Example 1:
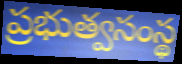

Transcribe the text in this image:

ప్రభుత్వసంస్థ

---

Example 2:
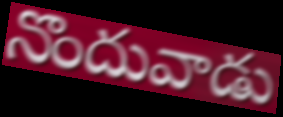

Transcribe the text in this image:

నొందువాడు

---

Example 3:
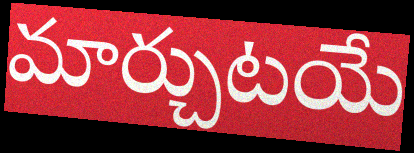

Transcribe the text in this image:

మార్చుటయే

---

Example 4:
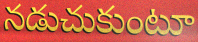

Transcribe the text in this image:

నడుచుకుంటూ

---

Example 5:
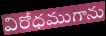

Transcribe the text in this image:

విరోధముగాను